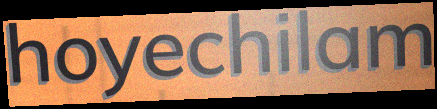
hoyechilam